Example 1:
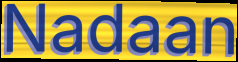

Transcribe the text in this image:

Nadaan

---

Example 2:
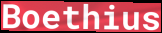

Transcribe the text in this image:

Boethius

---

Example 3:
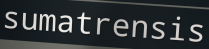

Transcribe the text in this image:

sumatrensis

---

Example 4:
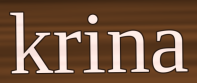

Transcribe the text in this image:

krina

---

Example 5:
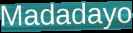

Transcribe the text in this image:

Madadayo